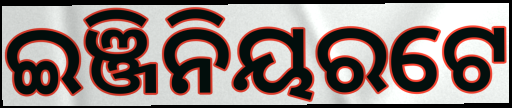
ଇଞ୍ଜିନିୟରଟେ